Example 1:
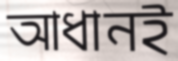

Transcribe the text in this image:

আধানই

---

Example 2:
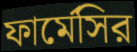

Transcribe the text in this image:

ফার্মেসির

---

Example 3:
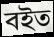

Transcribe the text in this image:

বইত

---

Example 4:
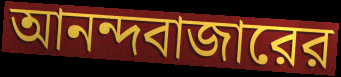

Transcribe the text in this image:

আনন্দবাজারের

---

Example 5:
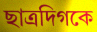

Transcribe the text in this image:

ছাত্রদিগকে